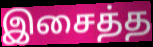
இசைத்த